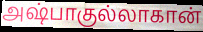
அஷ்பாகுல்லாகான்